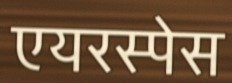
एयरस्पेस